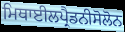
ਮਿਥਾਈਲਪ੍ਰੈਡਨੀਸੋਲੋਨ